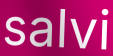
salvi